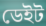
ডেইট